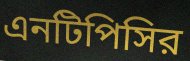
এনটিপিসির